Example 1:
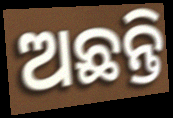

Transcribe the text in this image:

ଅଛନ୍ତି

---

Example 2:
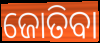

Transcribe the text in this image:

ଜୋତିବା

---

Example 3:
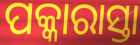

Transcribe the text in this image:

ପକ୍କାରାସ୍ତା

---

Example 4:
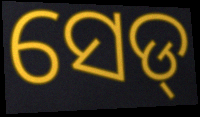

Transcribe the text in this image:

ସେଡ୍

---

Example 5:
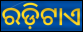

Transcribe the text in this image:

ରଡ଼ିଟାଏ